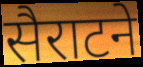
सैराटने